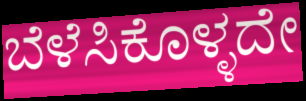
ಬೆಳೆಸಿಕೊಳ್ಳದೇ